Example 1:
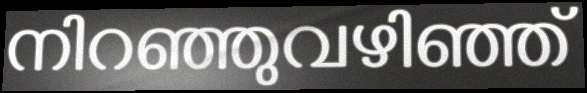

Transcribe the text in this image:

നിറഞ്ഞുവഴിഞ്ഞ്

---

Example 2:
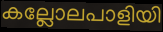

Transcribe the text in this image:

കല്ലോലപാളിയി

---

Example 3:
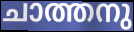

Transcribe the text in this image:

ചാത്തനു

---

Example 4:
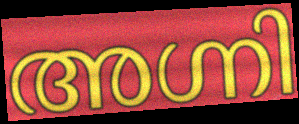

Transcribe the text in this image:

അഗ്നി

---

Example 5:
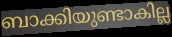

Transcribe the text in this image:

ബാക്കിയുണ്ടാകില്ല